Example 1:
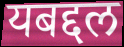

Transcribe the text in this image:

यबद्दल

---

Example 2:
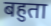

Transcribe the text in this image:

बहुता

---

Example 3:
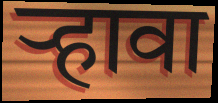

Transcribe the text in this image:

ऱ्हावा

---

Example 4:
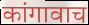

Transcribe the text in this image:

कांगावाच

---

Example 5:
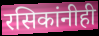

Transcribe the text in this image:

रसिकांनीही